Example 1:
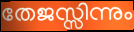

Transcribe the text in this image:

തേജസ്സിന്നും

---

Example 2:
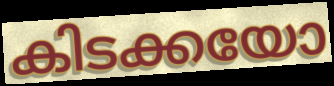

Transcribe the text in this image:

കിടക്കയോ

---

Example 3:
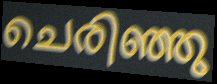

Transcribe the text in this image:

ചെരിഞ്ഞു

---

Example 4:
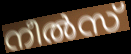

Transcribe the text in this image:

നീൽസ്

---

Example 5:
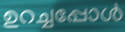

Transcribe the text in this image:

ഉറച്ചപ്പോൾ